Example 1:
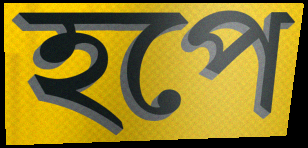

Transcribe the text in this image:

হপে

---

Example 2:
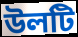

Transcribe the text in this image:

উলটি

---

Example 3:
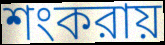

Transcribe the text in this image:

শংকরায়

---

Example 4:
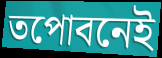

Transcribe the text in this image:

তপোবনেই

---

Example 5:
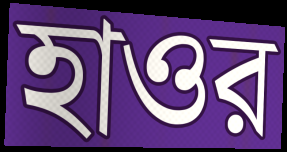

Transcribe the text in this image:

হাওর